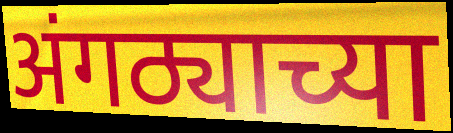
अंगठ्याच्या